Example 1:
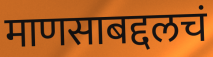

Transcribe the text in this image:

माणसाबद्दलचं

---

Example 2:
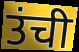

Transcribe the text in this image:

उंची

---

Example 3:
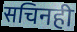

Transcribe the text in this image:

सचिनही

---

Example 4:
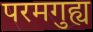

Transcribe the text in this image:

परमगुह्य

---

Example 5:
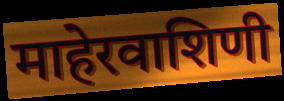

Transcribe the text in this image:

माहेरवाशिणी